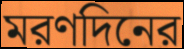
মরণদিনের